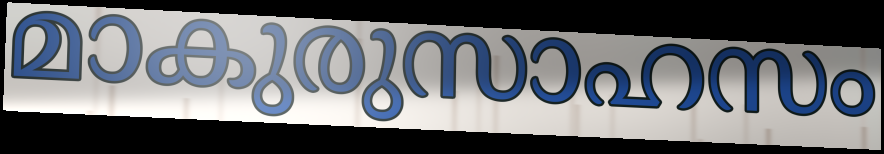
മാകുരുസാഹസം